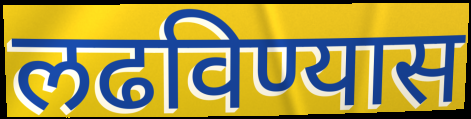
लढविण्यास